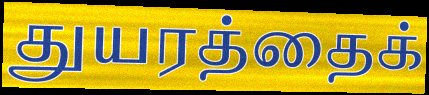
துயரத்தைக்